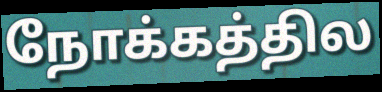
நோக்கத்தில